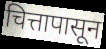
चित्तापासून